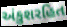
અંકુશરહિત